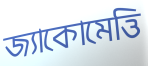
জ্যাকোমেত্তি